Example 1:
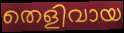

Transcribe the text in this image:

തെളിവായ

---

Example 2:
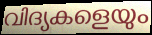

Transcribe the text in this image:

വിദ്യകളെയും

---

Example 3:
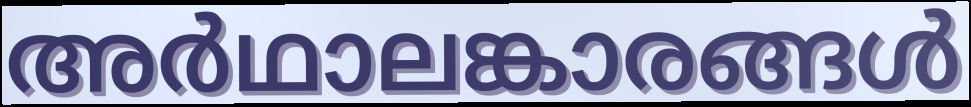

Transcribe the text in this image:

അർഥാലങ്കാരങ്ങൾ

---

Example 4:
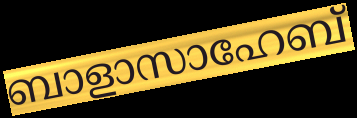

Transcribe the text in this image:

ബാളാസാഹേബ്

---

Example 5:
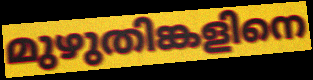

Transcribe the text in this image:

മുഴുതിങ്കളിനെ